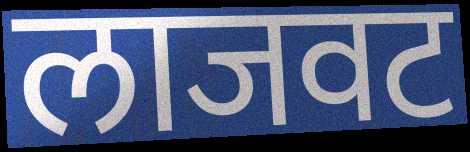
लाजवट